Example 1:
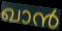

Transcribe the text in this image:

ഖാൻ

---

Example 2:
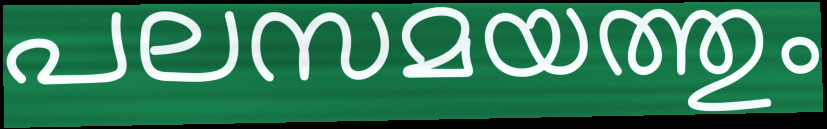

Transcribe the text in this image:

പലസമയത്തും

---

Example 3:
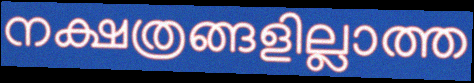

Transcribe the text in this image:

നക്ഷത്രങ്ങളില്ലാത്ത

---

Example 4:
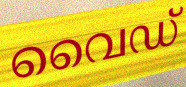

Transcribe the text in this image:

വൈഡ്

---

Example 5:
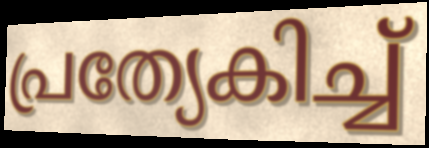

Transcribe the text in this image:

പ്രത്യേകിച്ച്